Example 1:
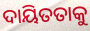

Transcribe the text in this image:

ଦାୟିତତାକୁ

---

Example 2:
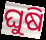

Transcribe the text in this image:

ଘୁଷି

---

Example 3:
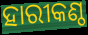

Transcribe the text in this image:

ହାରୀକଣ୍ଠ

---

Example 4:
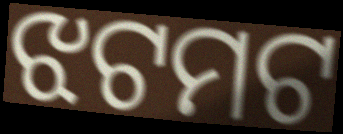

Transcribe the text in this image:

ଝଟମଟ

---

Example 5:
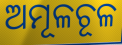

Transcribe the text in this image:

ଅମୂଳଚୂଳ